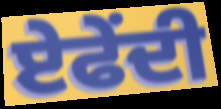
ਏਫੇਂਦੀ